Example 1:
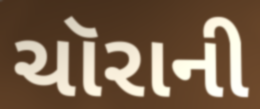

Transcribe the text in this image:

ચૉરાની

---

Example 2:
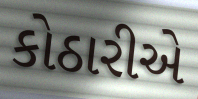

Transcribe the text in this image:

કોઠારીએ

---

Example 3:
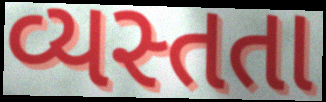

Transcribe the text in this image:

વ્યસ્તતા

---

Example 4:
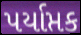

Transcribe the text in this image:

પર્યાપ્તક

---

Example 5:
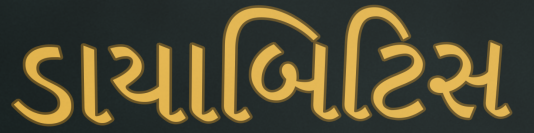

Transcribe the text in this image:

ડાયાબિટિસ